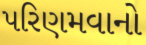
પરિણમવાનો